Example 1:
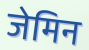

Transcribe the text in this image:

जेमिन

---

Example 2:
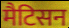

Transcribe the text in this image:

मैटिसन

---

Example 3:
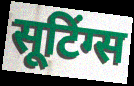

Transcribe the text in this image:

सूटिंग्स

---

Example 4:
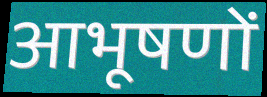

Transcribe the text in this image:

आभूषणों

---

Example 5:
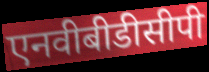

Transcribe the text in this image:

एनवीबीडीसीपी